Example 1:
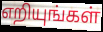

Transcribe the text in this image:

எறியுங்கள்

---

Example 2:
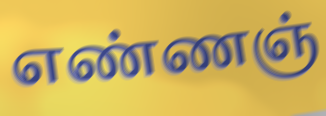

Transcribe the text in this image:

எண்ணஞ்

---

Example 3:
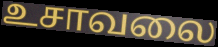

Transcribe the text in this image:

உசாவலை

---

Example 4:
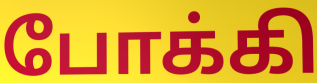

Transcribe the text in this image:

போக்கி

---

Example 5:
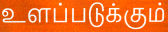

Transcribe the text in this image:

உளப்படுக்கும்